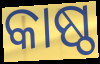
କାଷ୍ଠ